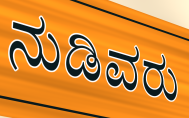
ನುಡಿವರು